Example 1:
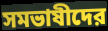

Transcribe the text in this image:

সমভাষীদের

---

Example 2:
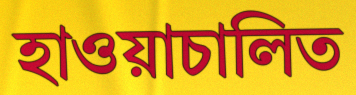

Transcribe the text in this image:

হাওয়াচালিত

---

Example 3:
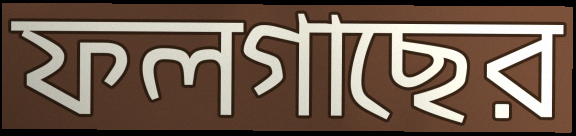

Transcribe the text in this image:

ফলগাছের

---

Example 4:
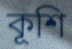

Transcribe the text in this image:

কূশি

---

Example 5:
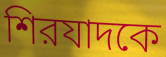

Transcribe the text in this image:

শিরযাদকে